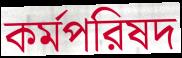
কর্মপরিষদ